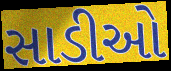
સાડીઓ